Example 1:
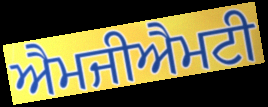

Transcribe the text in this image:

ਐਮਜੀਐਮਟੀ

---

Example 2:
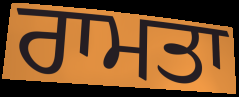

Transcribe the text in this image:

ਰਾਮਤਾ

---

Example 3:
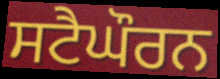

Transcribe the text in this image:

ਸਟੈਘੌਰਨ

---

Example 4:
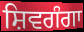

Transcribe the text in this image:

ਸ਼ਿਵਗੰਗਾ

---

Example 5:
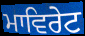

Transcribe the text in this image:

ਮਾਵਿਰੇਟ